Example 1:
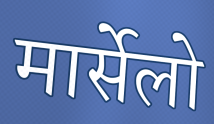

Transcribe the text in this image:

मार्सेलो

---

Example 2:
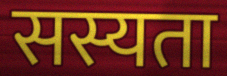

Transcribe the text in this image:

सस्यता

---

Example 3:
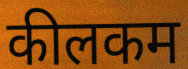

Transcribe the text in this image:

कीलकम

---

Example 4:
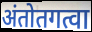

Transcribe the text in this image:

अंतोतगत्वा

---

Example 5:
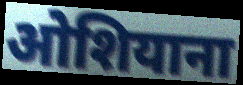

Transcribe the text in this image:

ओशियाना